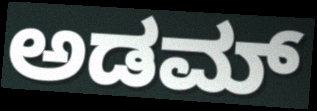
ಅಡಮ್